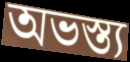
অভস্ত্য